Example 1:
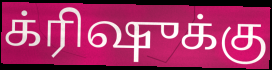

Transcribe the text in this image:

க்ரிஷுக்கு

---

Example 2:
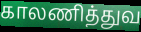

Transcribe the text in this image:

காலணித்துவ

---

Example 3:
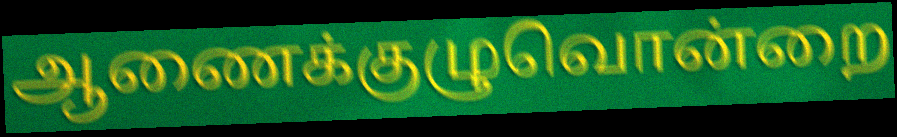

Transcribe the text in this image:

ஆணைக்குழுவொன்றை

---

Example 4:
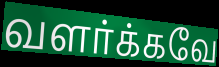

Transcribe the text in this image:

வளர்க்கவே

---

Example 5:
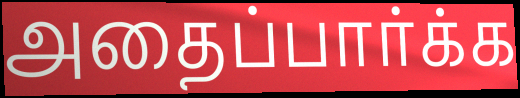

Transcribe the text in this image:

அதைப்பார்க்க